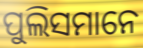
ପୁଲିସମାନେ